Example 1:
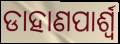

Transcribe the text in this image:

ଡାହାଣପାର୍ଶ୍ୱ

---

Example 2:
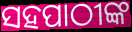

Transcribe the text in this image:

ସହପାଠୀଙ୍କ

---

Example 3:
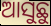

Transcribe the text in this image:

ଆସୁଛୁ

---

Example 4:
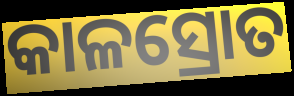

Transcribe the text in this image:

କାଳସ୍ରୋତ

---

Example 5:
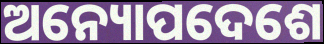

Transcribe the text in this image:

ଅନ୍ୟୋପଦେଶେ